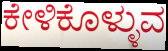
ಕೇಳಿಕೊಳ್ಳುವ